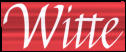
Witte